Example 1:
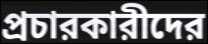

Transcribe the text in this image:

প্রচারকারীদের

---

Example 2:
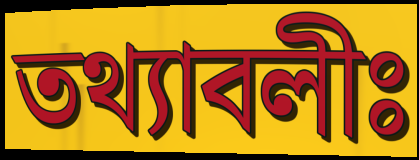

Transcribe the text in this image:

তথ্যাবলীঃ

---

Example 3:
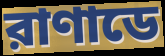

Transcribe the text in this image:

রাণাডে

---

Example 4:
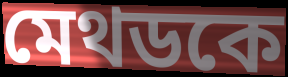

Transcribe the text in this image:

মেথডকে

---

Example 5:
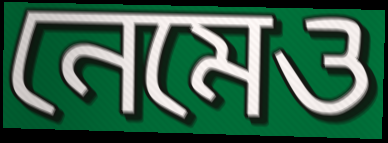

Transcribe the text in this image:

নেমেও